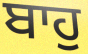
ਬਾਹੁ